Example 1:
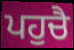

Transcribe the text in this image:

ਪਹੁਚੈ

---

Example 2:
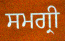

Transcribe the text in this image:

ਸਮਗ੍ਰੀ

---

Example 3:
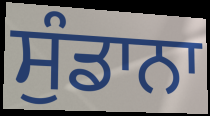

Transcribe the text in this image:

ਸੁੰਡਾਨਾ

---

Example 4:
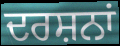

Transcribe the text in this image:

ਦਰਸ਼ਨਾਂ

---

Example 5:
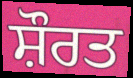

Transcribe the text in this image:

ਸ਼ੌਰਤ